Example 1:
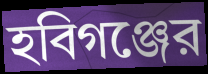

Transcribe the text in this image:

হবিগঞ্জের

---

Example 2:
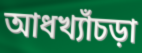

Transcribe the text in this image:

আধখ্যাঁচড়া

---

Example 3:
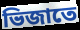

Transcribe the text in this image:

ভিজাতে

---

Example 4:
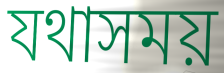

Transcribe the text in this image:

যথাসময়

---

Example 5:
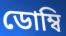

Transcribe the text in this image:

ডোম্বি